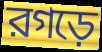
রগড়ে